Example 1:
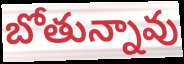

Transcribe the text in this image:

బోతున్నావు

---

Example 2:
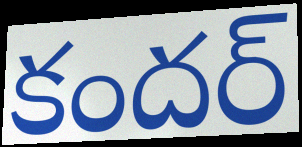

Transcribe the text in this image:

కందర్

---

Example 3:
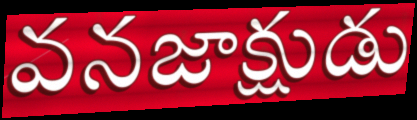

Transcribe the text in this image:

వనజాక్షుడు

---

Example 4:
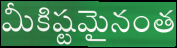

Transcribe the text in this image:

మీకిష్టమైనంత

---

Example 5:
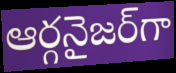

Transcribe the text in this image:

ఆర్గనైజర్‌గా